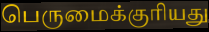
பெருமைக்குரியது